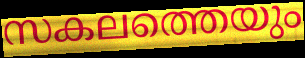
സകലത്തെയും